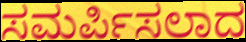
ಸಮರ್ಪಿಸಲಾದ